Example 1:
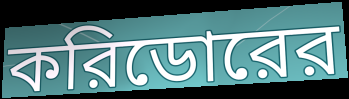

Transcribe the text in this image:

করিডোরের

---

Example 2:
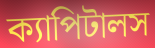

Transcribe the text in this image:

ক্যাপিটালস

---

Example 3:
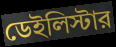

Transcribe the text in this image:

ডেইলিস্টার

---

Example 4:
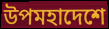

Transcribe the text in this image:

উপমহাদেশে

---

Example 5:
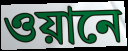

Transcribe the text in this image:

ওয়ানে